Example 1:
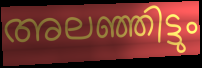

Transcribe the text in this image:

അലഞ്ഞിട്ടും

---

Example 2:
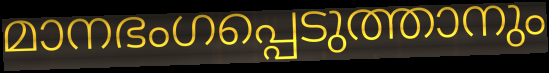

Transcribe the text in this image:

മാനഭംഗപ്പെടുത്താനും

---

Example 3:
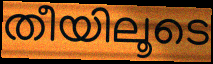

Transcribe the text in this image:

തീയിലൂടെ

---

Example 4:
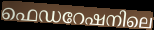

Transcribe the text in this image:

ഫെഡറേഷനിലെ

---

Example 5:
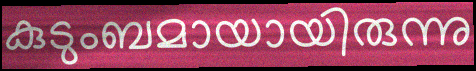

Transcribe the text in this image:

കുടുംബമായായിരുന്നു